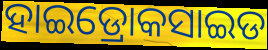
ହାଇଡ୍ରୋକସାଇଡ